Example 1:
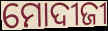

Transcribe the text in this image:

ମୋଦୀଜୀ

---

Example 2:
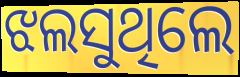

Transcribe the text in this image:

ଝଲସୁଥିଲେ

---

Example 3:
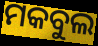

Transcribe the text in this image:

ମକବୁଲ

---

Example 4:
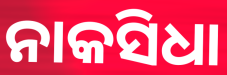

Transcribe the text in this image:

ନାକସିଧା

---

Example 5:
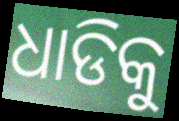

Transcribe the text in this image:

ଧାଡିକୁ